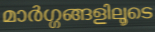
മാർഗ്ഗങ്ങളിലൂടെ